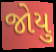
જોયુ